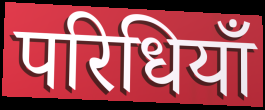
परिधियाँ